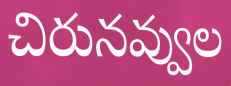
చిరునవ్వుల